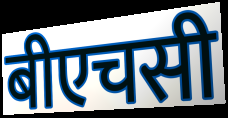
बीएचसी